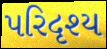
પરિદૃશ્ય